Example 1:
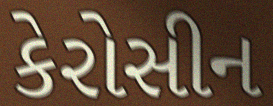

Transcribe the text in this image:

કેરોસીન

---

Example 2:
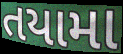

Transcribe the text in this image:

તયામા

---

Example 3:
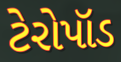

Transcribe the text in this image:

ટેરોપૉડ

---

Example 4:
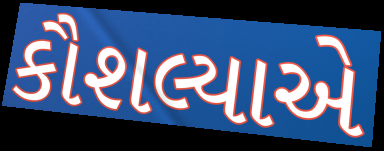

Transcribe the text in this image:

કૌશલ્યાએ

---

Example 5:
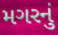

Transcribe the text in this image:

મગરનું